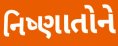
નિષ્ણાતોને